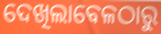
ଦେଖିଲାବେଳଠାରୁ